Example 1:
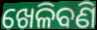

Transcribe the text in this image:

ଖେଳିବଣି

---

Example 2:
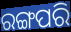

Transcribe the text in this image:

ରଙ୍ଗପରି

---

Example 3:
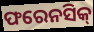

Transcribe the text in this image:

ଫରେନସିକ୍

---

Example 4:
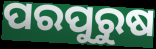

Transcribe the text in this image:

ପରପୁରୁଷ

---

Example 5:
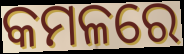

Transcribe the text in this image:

କମଳରେ